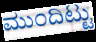
ಮುಂದಿಟ್ಟು